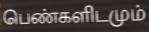
பெண்களிடமும்